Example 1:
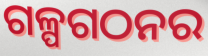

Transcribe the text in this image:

ଗଳ୍ପଗଠନର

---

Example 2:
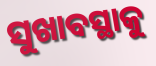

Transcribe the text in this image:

ସୁଖାବସ୍ଥାକୁ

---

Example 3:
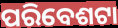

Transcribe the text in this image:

ପରିବେଶଟା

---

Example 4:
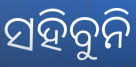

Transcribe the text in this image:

ସହିବୁନି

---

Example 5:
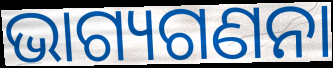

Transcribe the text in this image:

ଭାଗ୍ୟଗଣନା